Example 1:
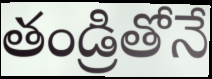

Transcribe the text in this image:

తండ్రితోనే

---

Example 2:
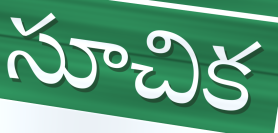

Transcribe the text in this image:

సూచిక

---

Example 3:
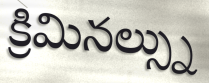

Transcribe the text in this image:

క్రిమినల్స్ను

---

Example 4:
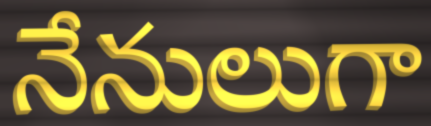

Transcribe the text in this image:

నేనులుగా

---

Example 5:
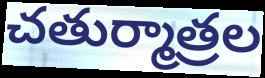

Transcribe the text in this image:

చతుర్మాత్రల